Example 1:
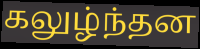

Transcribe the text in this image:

கலுழ்ந்தன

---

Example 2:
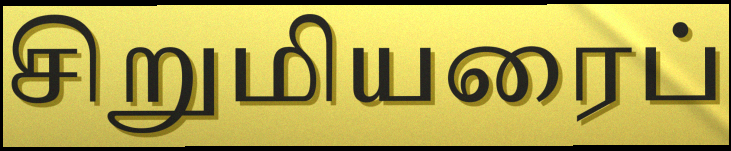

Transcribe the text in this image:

சிறுமியரைப்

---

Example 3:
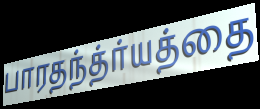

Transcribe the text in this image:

பாரதந்த்ர்யத்தை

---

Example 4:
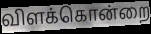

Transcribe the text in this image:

விளக்கொன்றை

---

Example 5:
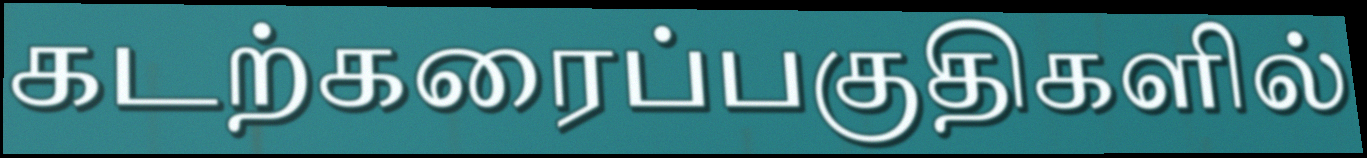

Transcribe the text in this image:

கடற்கரைப்பகுதிகளில்